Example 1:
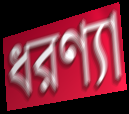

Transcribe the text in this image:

ধরণ্যা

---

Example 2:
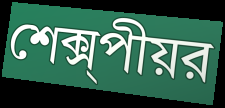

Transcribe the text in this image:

শেক্স্পীয়র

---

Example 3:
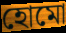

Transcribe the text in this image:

হোমো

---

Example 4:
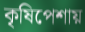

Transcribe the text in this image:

কৃষিপেশায়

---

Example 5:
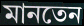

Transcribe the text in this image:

মানতেন